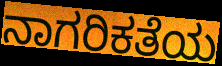
ನಾಗರಿಕತೆಯ